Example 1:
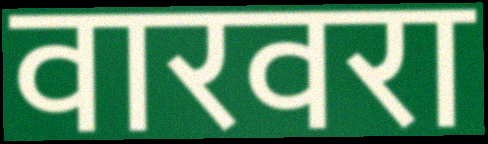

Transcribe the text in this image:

वारवरा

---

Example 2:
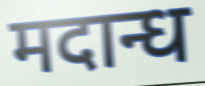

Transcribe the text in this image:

मदान्ध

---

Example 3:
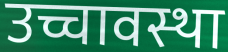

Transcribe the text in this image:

उच्चावस्था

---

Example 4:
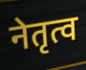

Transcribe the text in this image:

नेतृत्व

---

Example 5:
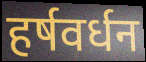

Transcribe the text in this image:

हर्षवर्धन